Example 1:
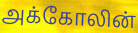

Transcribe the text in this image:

அக்கோலின்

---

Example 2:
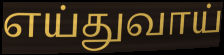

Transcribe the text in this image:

எய்துவாய்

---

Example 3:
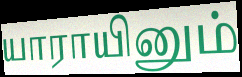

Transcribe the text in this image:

யாராயினும்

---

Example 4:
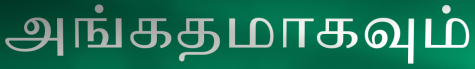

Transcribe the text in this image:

அங்கதமாகவும்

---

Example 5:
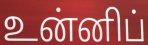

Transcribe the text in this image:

உன்னிப்